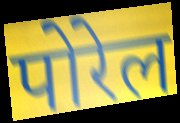
पोरेल